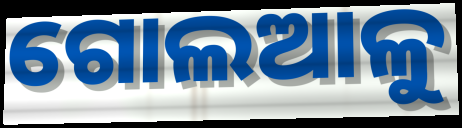
ଗୋଲଆଳୁ